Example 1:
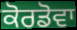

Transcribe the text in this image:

ਕੋਰਡੋਵਾ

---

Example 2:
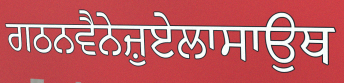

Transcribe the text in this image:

ਗਠਨਵੈਨੇਜ਼ੁਏਲਾਸਾਉਥ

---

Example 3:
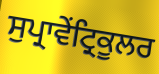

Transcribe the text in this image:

ਸੁਪ੍ਰਾਵੇਂਟ੍ਰਿਕੂਲਰ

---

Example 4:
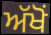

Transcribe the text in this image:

ਅੱਖੋਂ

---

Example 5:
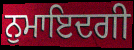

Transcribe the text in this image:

ਨੁਮਾਇਦਗੀ